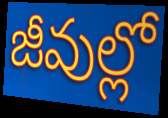
జీవుల్లో